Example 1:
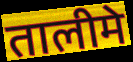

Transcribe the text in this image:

तालीमे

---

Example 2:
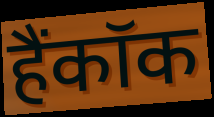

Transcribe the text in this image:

हैंकॉक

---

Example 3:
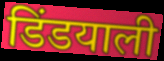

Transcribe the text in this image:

डिंडयाली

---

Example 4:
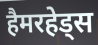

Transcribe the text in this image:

हैमरहेड्स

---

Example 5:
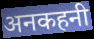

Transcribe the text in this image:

अनकहनी